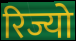
रिज्यो